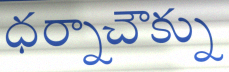
ధర్నాచౌక్ను